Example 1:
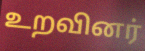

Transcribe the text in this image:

உறவினர்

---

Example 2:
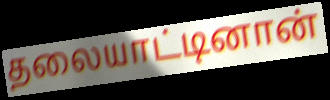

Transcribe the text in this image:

தலையாட்டினான்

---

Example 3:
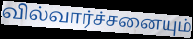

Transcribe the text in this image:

வில்வார்ச்சனையும்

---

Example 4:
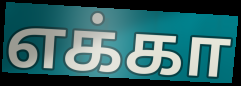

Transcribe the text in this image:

எக்கா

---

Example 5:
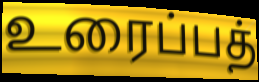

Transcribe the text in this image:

உரைப்பத்